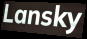
Lansky